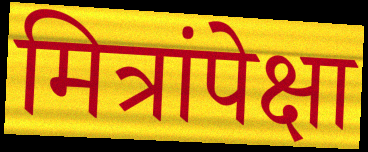
मित्रांपेक्षा